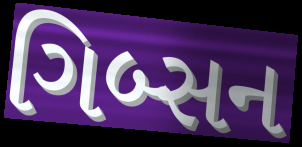
ગિબ્સન